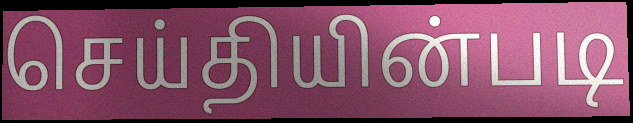
செய்தியின்படி